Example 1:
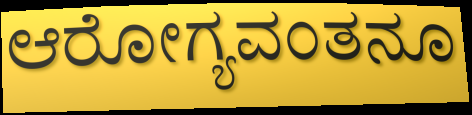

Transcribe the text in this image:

ಆರೋಗ್ಯವಂತನೂ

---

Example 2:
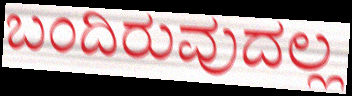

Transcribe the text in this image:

ಬಂದಿರುವುದಲ್ಲ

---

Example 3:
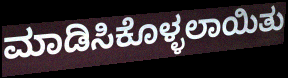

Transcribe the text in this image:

ಮಾಡಿಸಿಕೊಳ್ಳಲಾಯಿತು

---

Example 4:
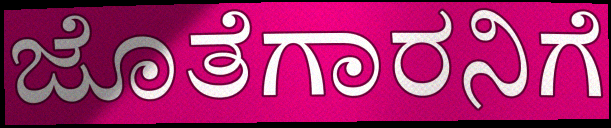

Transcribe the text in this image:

ಜೊತೆಗಾರನಿಗೆ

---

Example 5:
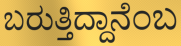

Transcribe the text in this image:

ಬರುತ್ತಿದ್ದಾನೆಂಬ